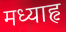
मध्याहृ